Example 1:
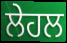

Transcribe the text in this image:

ਲੇਹਲ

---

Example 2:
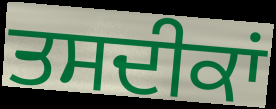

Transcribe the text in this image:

ਤਸਦੀਕਾਂ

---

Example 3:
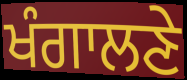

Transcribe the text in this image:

ਖੰਗਾਲਣੇ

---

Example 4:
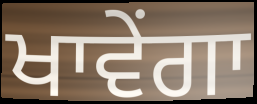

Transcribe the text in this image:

ਖਾਵੇਂਗਾ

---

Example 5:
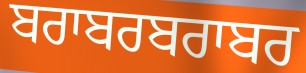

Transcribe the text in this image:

ਬਰਾਬਰਬਰਾਬਰ